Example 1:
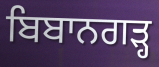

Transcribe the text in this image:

ਬਿਬਾਨਗੜ੍ਹ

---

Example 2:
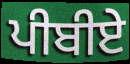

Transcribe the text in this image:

ਪੀਬੀਏ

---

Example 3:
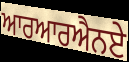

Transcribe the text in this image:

ਆਰਆਰਐਨਏ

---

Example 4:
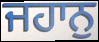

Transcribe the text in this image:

ਜਹਾਨੁ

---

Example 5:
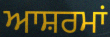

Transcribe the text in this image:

ਆਸ਼ਰਮਾਂ